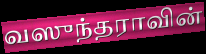
வஸுந்தராவின்